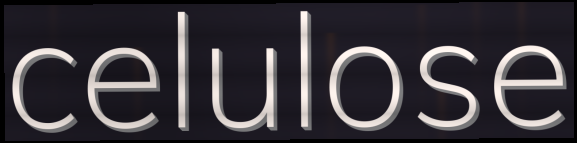
celulose